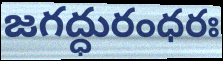
జగద్ధురంధరః